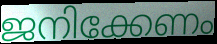
ജനിക്കേണം